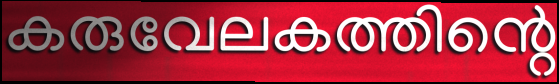
കരുവേലകത്തിന്റെ